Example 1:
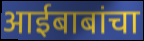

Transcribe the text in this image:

आईबाबांचा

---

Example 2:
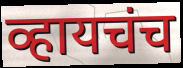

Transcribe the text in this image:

व्हायचंच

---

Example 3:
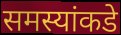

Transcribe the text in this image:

समस्यांकडे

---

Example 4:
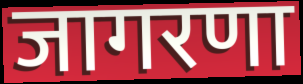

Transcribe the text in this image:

जागरणा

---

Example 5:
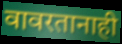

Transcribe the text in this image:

वावरतानाही